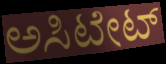
ಅಸಿಟೇಟ್